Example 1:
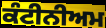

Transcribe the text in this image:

ਕੰਟੀਨੀਅਮ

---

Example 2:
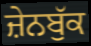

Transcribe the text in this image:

ਜ਼ੇਨਬੁੱਕ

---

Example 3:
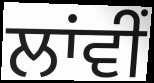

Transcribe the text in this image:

ਲਾਂਵੀਂ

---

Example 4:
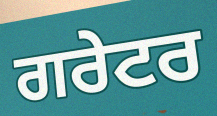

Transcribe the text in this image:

ਗਰੇਟਰ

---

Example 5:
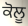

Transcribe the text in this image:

ਕੋਲੂ